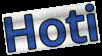
Hoti